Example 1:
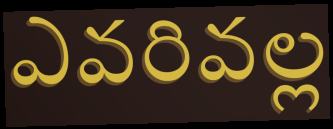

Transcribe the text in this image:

ఎవరివల్ల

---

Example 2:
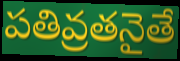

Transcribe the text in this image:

పతివ్రతనైతే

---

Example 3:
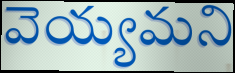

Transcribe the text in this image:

వెయ్యమని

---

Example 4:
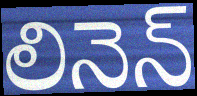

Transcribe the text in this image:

లినెన్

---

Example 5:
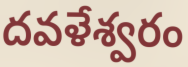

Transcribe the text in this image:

దవళేశ్వరం